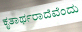
ಕೃತಾರ್ಥರಾದೆವೆಂದು